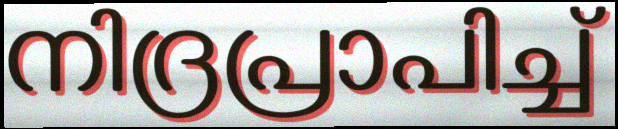
നിദ്രപ്രാപിച്ച്